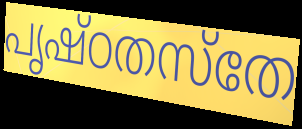
പൃഷ്ഠതസ്തേ